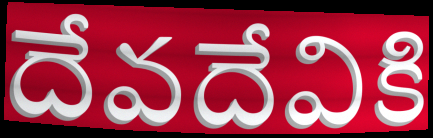
దేవదేవికి